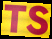
TS